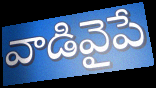
వాడివైపే